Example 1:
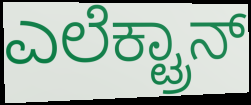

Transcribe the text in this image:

ಎಲೆಕ್ಟ್ರಾನ್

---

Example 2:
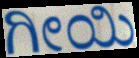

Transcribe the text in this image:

ಗೀಯಿ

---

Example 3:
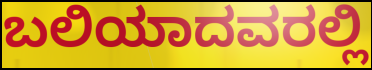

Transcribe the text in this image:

ಬಲಿಯಾದವರಲ್ಲಿ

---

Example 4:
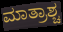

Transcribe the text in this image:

ಮಾತ್ರಾಶ್ಚ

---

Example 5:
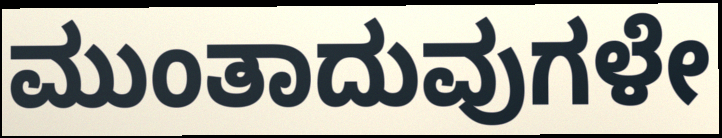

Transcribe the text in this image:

ಮುಂತಾದುವುಗಳೇ